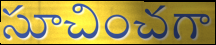
సూచించగా